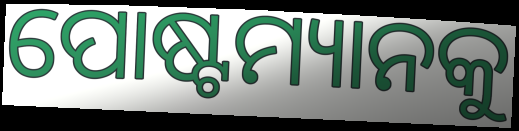
ପୋଷ୍ଟମ୍ୟାନକୁ